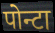
पोन्टा